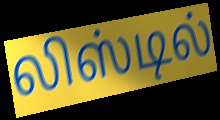
லிஸ்டில்